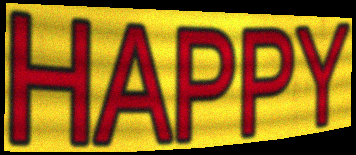
HAPPY